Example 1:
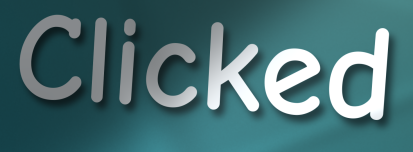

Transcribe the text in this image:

Clicked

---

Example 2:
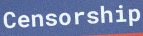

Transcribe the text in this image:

Censorship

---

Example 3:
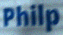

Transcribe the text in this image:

Philp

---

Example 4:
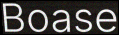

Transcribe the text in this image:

Boase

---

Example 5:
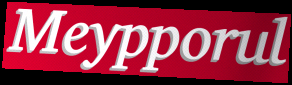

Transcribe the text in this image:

Meypporul